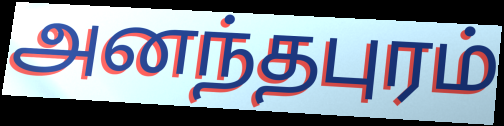
அனந்தபுரம்